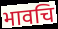
भावचि